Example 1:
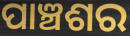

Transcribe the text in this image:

ପାଞ୍ଚଶର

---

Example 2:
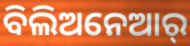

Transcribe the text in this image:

ବିଲିଅନେଆର୍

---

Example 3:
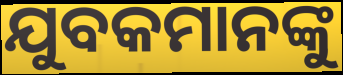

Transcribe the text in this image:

ଯୁବକମାନଙ୍କୁ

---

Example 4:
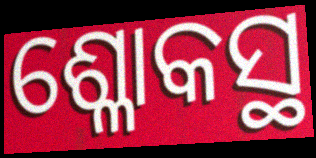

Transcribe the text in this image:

ଶ୍ଳୋକସ୍ଥ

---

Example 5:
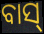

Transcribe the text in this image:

ବାସ୍